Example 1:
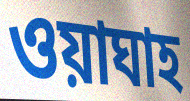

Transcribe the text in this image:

ওয়াঘাহ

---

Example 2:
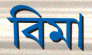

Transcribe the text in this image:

বিমা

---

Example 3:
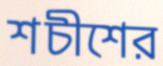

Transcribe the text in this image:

শচীশের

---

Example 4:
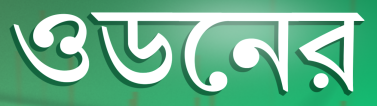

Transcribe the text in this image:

ওডনের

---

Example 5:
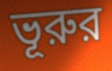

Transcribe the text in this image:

ভূরুর